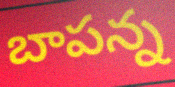
బాపన్న